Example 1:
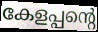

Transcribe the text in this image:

കേളപ്പന്റെ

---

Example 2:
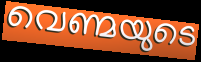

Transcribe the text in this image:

വെണ്മയുടെ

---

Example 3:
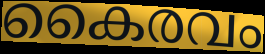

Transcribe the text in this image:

കൈരവം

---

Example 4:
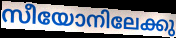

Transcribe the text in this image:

സീയോനിലേക്കു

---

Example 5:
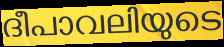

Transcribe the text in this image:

ദീപാവലിയുടെ